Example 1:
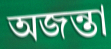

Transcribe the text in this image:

অজন্তা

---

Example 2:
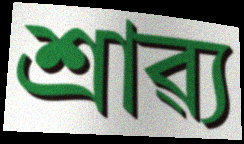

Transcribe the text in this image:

শ্ৰাৱ্য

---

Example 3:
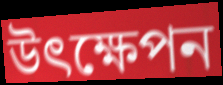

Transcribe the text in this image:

উৎক্ষেপন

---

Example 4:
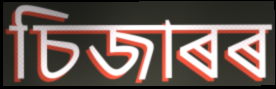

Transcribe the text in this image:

চিজাৰৰ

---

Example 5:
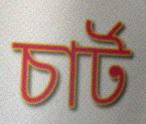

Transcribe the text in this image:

চাৰ্ট